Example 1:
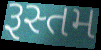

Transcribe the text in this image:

રૂસ્તમ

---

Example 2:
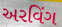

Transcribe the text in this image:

અરવિંગ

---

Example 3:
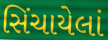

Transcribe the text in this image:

સિંચાયેલાં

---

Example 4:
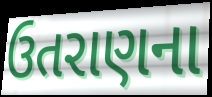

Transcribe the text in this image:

ઉતરાણના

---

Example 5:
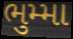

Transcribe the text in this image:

ભુમ્મા